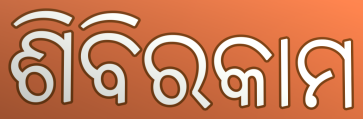
ଶିବିରକାମ